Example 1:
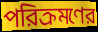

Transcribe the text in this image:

পরিক্রমণের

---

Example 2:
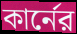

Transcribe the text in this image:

কার্নের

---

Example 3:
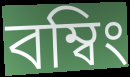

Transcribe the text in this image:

বম্বিং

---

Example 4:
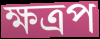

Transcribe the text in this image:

ক্ষত্রপ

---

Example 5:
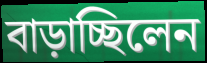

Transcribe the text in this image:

বাড়াচ্ছিলেন